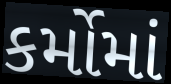
કર્મોમાં